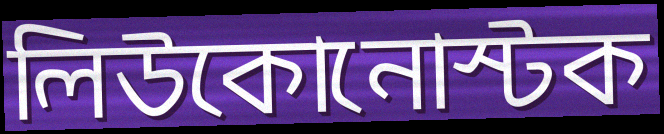
লিউকোনোস্টক